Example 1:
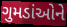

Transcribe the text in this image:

ગુમડાંઓને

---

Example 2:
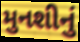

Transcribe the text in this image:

મુનશીનું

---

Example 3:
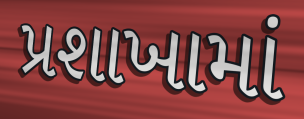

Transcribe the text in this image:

પ્રશાખામાં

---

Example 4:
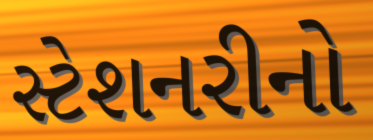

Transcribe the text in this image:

સ્ટેશનરીનો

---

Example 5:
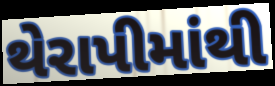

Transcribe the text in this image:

થેરાપીમાંથી